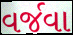
વર્જવા